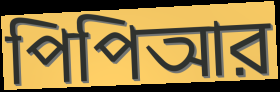
পিপিআর